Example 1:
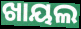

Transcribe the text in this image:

ଖାୟଲ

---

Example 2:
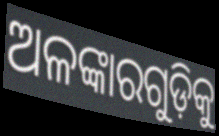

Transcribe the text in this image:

ଅଳଙ୍କାରଗୁଡ଼ିକୁ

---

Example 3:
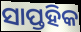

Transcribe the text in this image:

ସାପ୍ତହିକ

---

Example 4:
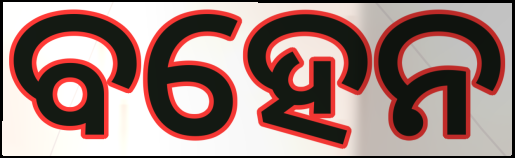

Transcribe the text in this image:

ବହେନ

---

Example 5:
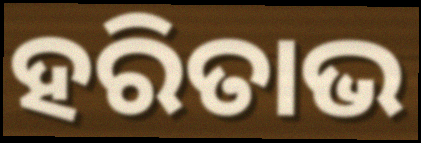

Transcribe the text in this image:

ହରିତାଭ